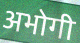
अभोगी